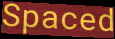
Spaced